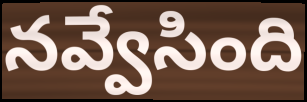
నవ్వేసింది